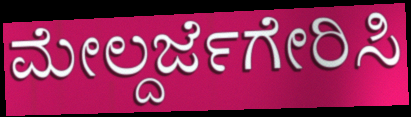
ಮೇಲ್ದರ್ಜೆಗೇರಿಸಿ